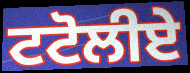
ਟਟੋਲੀਏ